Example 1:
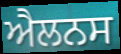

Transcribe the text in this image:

ਐਲਨਸ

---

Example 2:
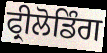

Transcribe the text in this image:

ਫ੍ਰੀਲੋਡਿੰਗ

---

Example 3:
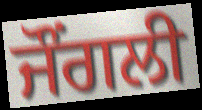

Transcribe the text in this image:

ਜੌਂਗਲੀ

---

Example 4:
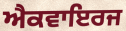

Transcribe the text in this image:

ਐਕਵਾਇਰਜ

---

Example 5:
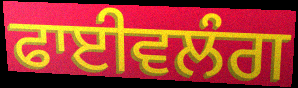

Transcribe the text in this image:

ਫਾਈਵਲੰਗ